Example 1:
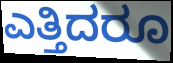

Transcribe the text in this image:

ಎತ್ತಿದರೂ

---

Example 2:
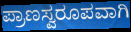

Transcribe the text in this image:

ಪ್ರಾಣಸ್ವರೂಪವಾಗಿ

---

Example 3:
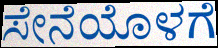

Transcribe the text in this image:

ಸೇನೆಯೊಳಗೆ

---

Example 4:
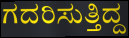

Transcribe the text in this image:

ಗದರಿಸುತ್ತಿದ್ದ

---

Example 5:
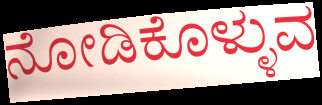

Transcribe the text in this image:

ನೋಡಿಕೊಳ್ಳುವ